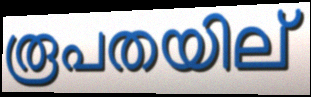
രൂപതയില്